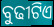
ବୁଢୀଟିଏ